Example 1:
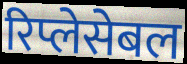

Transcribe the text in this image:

रिप्लेसेबल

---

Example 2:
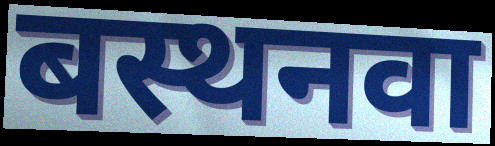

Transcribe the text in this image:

बस्थनवा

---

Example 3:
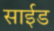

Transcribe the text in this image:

साईड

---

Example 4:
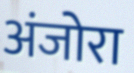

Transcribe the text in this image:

अंजोरा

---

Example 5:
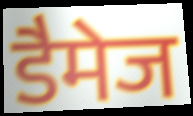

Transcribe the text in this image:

डैमेज